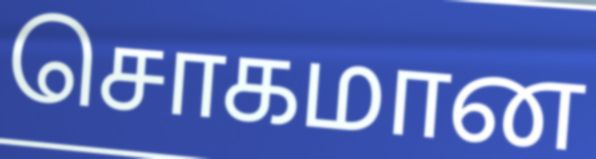
சொகமான